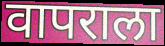
वापराला